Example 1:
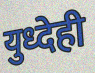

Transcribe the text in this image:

युध्देही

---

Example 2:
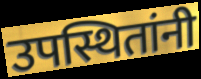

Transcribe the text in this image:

उपस्थितांनी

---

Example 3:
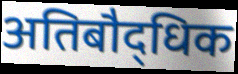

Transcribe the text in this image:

अतिबौद्धिक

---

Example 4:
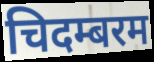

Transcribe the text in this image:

चिदम्बरम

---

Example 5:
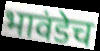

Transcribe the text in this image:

भावंडेच